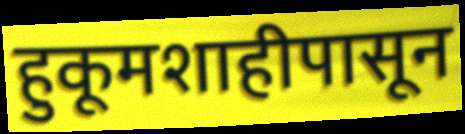
हुकूमशाहीपासून